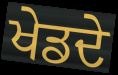
ਖੇਡਦੇ